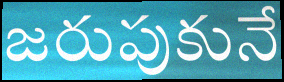
జరుపుకునే